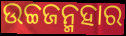
ଉଚ୍ଚଜନ୍ମହାର